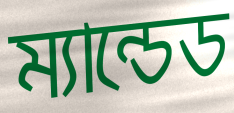
ম্যান্ডেড